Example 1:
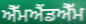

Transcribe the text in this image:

ਐੱਮਐਂਡਐੱਮ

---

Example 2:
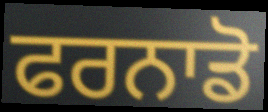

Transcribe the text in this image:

ਫਰਨਾਡੋ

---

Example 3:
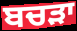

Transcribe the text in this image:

ਬਚੜਾ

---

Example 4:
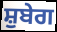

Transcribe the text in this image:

ਸ਼ੁਬੇਗ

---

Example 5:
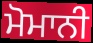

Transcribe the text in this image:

ਮੋਮਾਨੀ